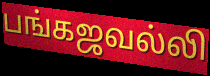
பங்கஜவல்லி